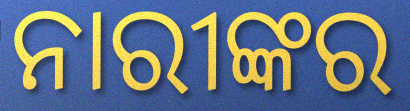
ନାରୀଙ୍କର